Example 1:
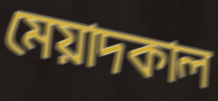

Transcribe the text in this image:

মেয়াদকাল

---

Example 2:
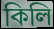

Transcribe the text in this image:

কিলি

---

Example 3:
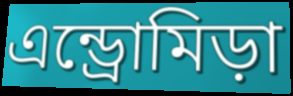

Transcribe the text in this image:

এন্ড্রোমিড়া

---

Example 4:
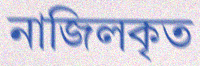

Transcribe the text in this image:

নাজিলকৃত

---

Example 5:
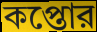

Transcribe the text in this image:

কপ্তোর